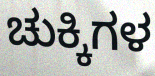
ಚುಕ್ಕಿಗಳ